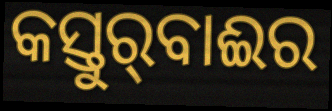
କସ୍ତୁର୍‍ବାଈର